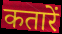
कतारें